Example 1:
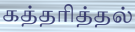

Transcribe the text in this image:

கத்தரித்தல்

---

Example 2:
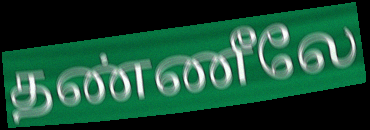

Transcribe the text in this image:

தண்ணீலே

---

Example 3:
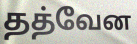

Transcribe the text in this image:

தத்வேன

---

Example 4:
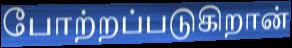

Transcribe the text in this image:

போற்றப்படுகிறான்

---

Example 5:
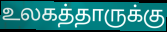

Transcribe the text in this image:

உலகத்தாருக்கு